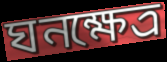
ঘনক্ষেত্র